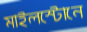
মাইলস্টোনে